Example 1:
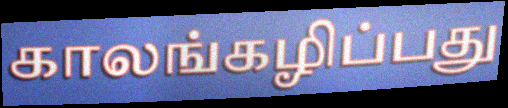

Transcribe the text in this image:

காலங்கழிப்பது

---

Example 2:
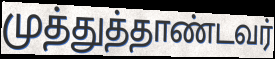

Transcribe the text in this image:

முத்துத்தாண்டவர்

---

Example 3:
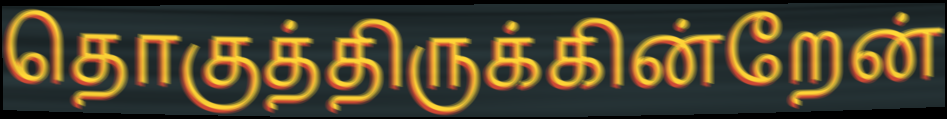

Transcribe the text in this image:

தொகுத்திருக்கின்றேன்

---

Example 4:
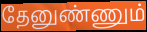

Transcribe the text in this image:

தேனுண்ணும்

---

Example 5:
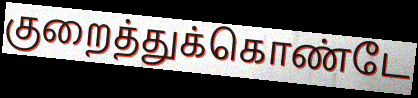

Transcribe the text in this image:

குறைத்துக்கொண்டே